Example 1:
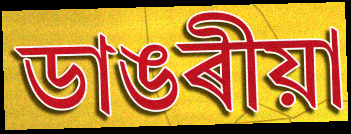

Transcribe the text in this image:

ডাঙৰীয়া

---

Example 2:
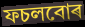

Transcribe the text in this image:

ফচলবোৰ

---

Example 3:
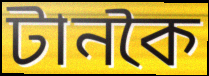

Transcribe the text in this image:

টানকৈ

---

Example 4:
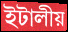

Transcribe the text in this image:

ইটালীয়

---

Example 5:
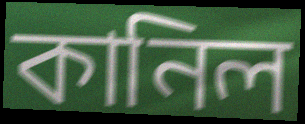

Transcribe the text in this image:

কানিল